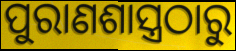
ପୁରାଣଶାସ୍ତ୍ରଠାରୁ